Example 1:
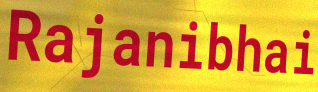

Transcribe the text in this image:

Rajanibhai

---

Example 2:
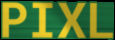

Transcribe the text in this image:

PIXL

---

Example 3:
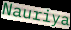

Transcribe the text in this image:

Nauriya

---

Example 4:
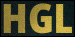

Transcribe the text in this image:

HGL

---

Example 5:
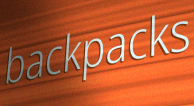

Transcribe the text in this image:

backpacks